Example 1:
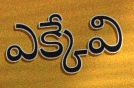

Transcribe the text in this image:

ఎక్కేవి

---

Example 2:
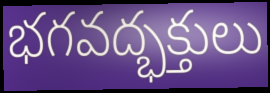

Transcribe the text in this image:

భగవద్భక్తులు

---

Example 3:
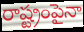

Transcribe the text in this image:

రాష్ట్రంపైనా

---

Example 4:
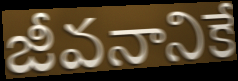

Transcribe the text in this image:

జీవనానికే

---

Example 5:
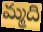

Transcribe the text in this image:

మ్మది